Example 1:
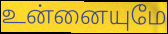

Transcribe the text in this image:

உன்னையுமே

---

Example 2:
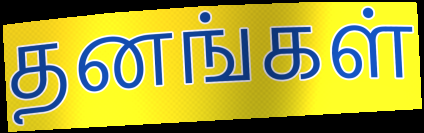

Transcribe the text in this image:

தனங்கள்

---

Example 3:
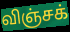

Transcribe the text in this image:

விஞ்சக்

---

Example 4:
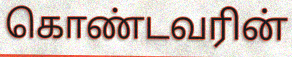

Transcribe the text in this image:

கொண்டவரின்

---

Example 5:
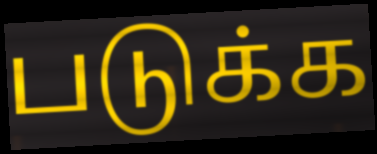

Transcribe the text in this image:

படுக்க